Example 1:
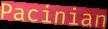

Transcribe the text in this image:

Pacinian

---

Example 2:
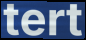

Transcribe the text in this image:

tert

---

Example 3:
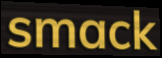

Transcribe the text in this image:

smack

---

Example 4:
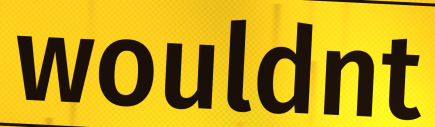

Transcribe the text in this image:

wouldnt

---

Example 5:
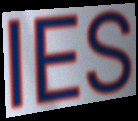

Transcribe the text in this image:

IES